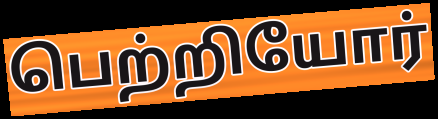
பெற்றியோர்